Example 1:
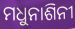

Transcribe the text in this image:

ମଧୁନାଶିନୀ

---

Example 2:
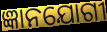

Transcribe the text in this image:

ଜ୍ଞାନଯୋଗୀ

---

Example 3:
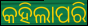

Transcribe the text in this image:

କହିଲାପରି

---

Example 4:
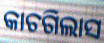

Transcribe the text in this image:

କାଚଗିଲାସ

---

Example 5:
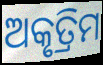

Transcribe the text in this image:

ଅକୃତ୍ରିମ